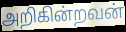
அறிகின்றவன்